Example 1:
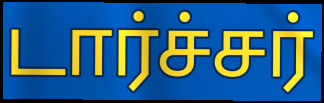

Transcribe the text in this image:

டார்ச்சர்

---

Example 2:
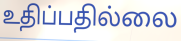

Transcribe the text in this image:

உதிப்பதில்லை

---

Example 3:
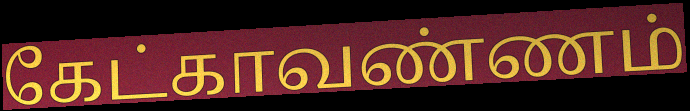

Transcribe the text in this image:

கேட்காவண்ணம்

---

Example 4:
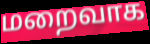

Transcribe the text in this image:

மறைவாக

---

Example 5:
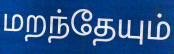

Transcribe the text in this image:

மறந்தேயும்